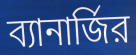
ব্যানার্জির